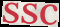
ssc